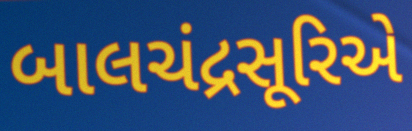
બાલચંદ્રસૂરિએ